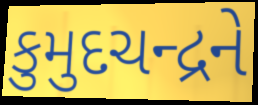
કુમુદચન્દ્રને